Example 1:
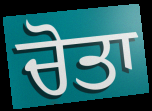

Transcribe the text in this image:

ਚੋਤਾ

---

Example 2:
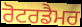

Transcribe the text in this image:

ਰੋਟਰਡੈਮਰ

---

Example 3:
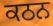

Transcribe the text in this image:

ਕਠਨ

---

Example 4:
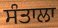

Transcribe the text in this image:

ਸੰਤਾਲਾ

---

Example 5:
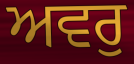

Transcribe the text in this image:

ਅਵਰੁ